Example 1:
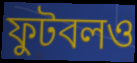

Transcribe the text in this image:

ফুটবলও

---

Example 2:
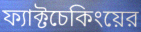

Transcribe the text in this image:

ফ্যাক্টচেকিংয়ের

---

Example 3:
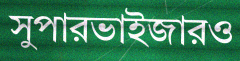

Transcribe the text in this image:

সুপারভাইজারও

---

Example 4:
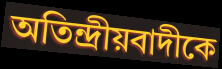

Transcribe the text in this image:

অতিন্দ্রীয়বাদীকে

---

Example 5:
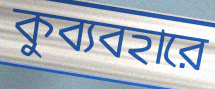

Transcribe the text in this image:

কুব্যবহারে